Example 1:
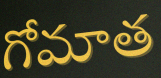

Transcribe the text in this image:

గోమాత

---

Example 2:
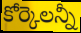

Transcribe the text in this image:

కోర్కెలన్నీ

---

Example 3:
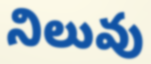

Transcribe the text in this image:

నిలువు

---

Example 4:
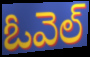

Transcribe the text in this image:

ఓవెల్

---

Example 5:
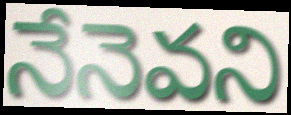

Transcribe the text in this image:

నేనెవని